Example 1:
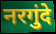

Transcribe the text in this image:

नरगुंदे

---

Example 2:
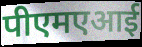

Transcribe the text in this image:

पीएमएआई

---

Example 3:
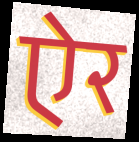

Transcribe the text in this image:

ऐर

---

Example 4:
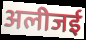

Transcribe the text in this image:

अलीजई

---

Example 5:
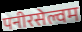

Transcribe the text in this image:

पनीरसेल्वम